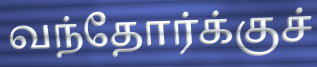
வந்தோர்க்குச்